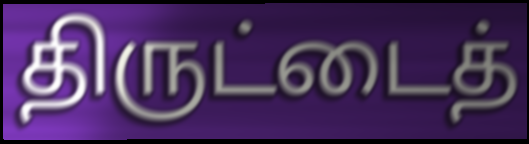
திருட்டைத்